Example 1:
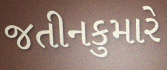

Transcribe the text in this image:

જતીનકુમારે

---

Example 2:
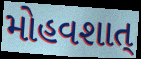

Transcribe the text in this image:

મોહવશાત્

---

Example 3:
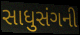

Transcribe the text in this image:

સાધુસંગની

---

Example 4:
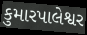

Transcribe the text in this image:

કુમારપાલેશ્વર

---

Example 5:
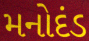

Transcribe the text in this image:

મનોદંડ